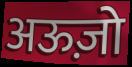
अऊज़ो